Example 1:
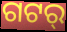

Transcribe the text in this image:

ଗଟର୍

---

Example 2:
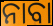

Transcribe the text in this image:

ନାବା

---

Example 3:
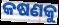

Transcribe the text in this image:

କଷଣକୁ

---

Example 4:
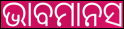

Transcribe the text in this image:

ଭାବମାନସ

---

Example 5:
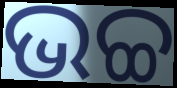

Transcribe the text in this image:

ଭଚ୍ଚ